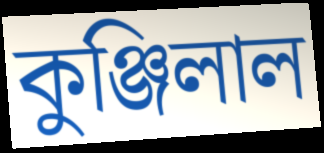
কুঞ্জিলাল